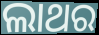
ଲାଥର